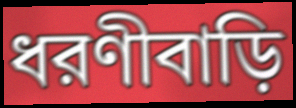
ধরণীবাড়ি